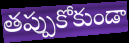
తప్పుకోకుండా